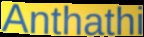
Anthathi